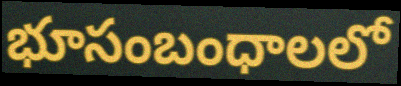
భూసంబంధాలలో